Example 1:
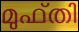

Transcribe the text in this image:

മുഫ്തി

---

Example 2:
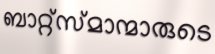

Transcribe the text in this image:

ബാറ്റ്സ്മാന്മാരുടെ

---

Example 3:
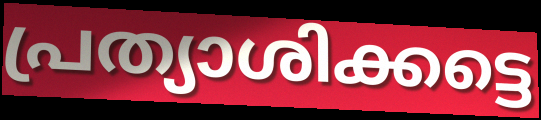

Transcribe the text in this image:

പ്രത്യാശിക്കട്ടെ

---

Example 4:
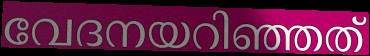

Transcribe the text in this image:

വേദനയറിഞ്ഞത്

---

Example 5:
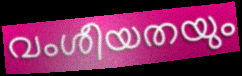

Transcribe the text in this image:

വംശീയതയും